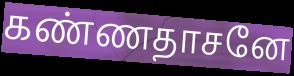
கண்ணதாசனே